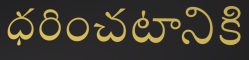
ధరించటానికి